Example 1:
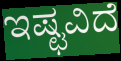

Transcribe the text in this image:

ಇಷ್ಟವಿದೆ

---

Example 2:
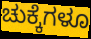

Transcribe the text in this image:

ಚುಕ್ಕೆಗಳೂ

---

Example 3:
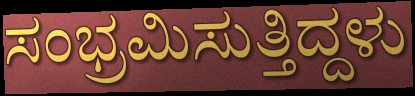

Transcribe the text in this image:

ಸಂಭ್ರಮಿಸುತ್ತಿದ್ದಳು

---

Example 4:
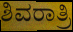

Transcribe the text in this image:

ಶಿವರಾತ್ರಿ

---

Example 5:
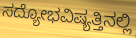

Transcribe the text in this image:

ಸದ್ಯೋಭವಿಷ್ಯತ್ತಿನಲ್ಲಿ